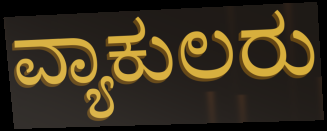
ವ್ಯಾಕುಲರು